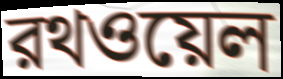
রথওয়েল